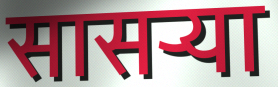
सासर्‍या